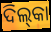
ଦିଲ୍‌କା